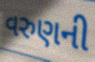
વરુણની